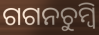
ଗଗନଚୁମ୍ବି